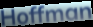
Hoffman